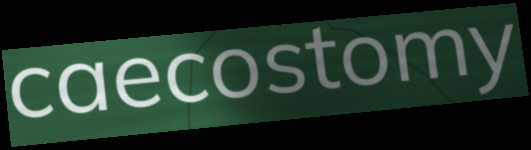
caecostomy